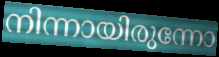
നിന്നായിരുന്നോ